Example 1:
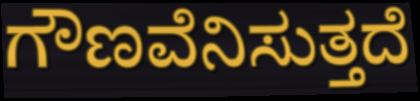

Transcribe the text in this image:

ಗೌಣವೆನಿಸುತ್ತದೆ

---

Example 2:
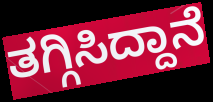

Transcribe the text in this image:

ತಗ್ಗಿಸಿದ್ದಾನೆ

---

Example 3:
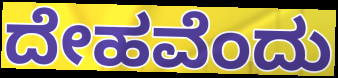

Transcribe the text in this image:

ದೇಹವೆಂದು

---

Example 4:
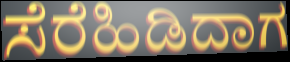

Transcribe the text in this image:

ಸೆರೆಹಿಡಿದಾಗ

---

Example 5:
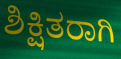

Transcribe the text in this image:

ಶಿಕ್ಷಿತರಾಗಿ